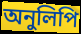
অনুলিপি